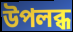
উপলব্ধ